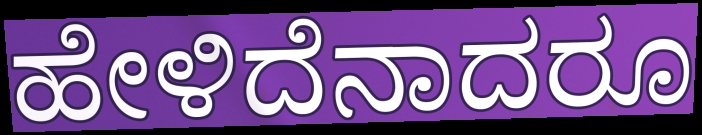
ಹೇಳಿದೆನಾದರೂ